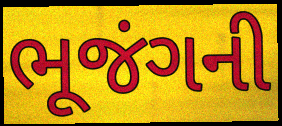
ભૂજંગની